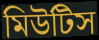
মিউটিস